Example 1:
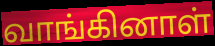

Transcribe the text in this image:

வாங்கினாள்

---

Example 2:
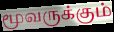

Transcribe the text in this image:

மூவருக்கும்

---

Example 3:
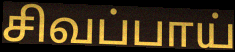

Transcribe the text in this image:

சிவப்பாய்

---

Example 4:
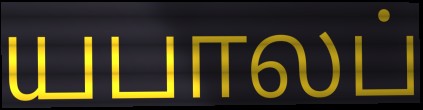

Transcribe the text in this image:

யபாலப்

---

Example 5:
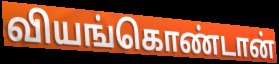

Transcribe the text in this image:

வியங்கொண்டான்